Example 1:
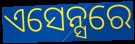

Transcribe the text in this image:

ଏସେନ୍ସରେ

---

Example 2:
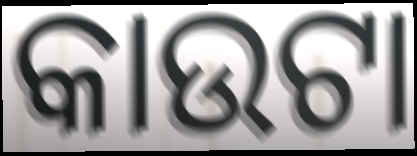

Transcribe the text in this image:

କାଉଟା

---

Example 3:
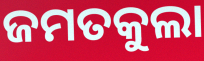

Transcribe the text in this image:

ଜମତକୁଲା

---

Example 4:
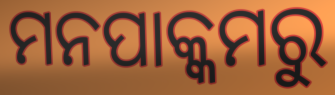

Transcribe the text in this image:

ମନପାକ୍କମରୁ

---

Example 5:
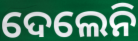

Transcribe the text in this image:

ଦେଲେନି